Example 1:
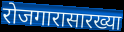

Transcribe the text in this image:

रोजगारासारख्या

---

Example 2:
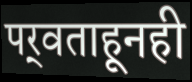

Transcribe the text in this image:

पर्वताहूनही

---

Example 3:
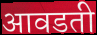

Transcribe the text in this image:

आवडती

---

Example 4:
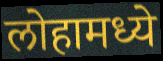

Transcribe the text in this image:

लोहामध्ये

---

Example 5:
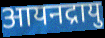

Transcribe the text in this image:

आयनद्रायु